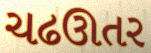
ચઢઊતર